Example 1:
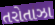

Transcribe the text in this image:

તરોતાઝા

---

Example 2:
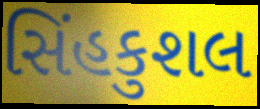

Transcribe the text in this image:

સિંહકુશલ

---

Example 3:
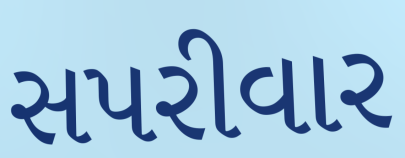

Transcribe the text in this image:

સપરીવાર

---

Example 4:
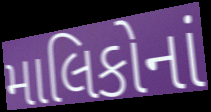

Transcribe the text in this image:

માલિકોનાં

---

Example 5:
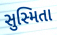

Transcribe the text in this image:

સુસ્મિતા